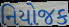
નિયોજક